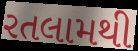
રતલામથી